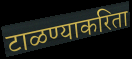
टाळण्याकरिता